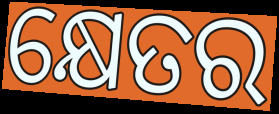
କ୍ଷେତର